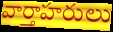
వార్తాహరులు